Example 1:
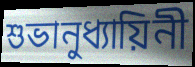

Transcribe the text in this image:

শুভানুধ্যায়িনী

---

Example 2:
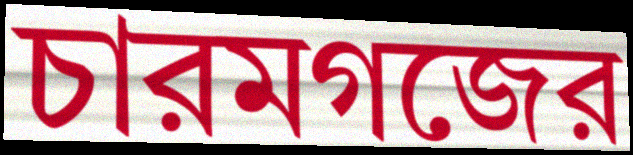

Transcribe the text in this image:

চারমগজের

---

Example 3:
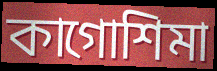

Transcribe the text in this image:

কাগোশিমা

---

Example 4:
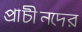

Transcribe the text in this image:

প্রাচীনদের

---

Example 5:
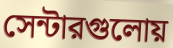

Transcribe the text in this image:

সেন্টারগুলোয়